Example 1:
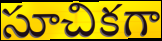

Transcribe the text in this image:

సూచికగా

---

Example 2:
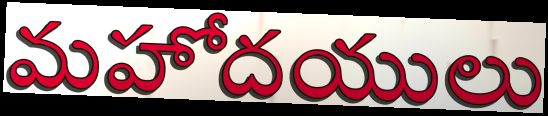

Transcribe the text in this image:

మహోదయులు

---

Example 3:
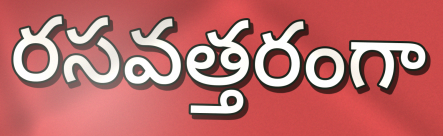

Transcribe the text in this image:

రసవత్తరంగా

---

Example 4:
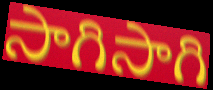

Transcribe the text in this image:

సాగిసాగి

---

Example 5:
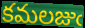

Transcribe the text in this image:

కమలజుఁ